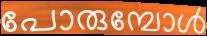
പോരുമ്പോൾ